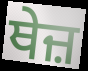
ਥੇਜ਼